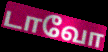
டாவோ